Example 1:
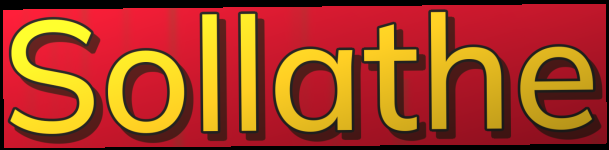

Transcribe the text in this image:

Sollathe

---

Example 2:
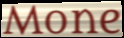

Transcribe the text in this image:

Mone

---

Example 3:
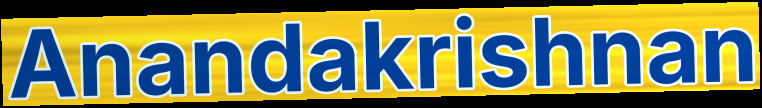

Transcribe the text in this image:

Anandakrishnan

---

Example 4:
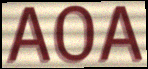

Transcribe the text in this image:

AOA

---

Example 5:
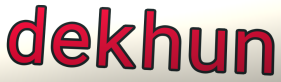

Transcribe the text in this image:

dekhun